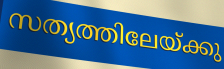
സത്യത്തിലേയ്ക്കു